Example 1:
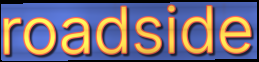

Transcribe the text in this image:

roadside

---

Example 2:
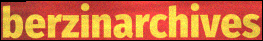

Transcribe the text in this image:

berzinarchives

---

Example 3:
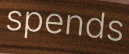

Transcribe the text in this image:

spends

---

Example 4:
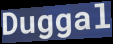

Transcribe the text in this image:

Duggal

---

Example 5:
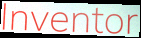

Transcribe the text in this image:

Inventor